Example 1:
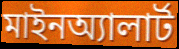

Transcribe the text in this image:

মাইনঅ্যালার্ট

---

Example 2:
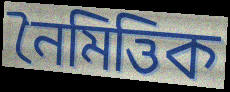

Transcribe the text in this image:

নৈমিত্তিক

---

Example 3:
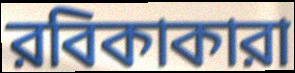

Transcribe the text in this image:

রবিকাকারা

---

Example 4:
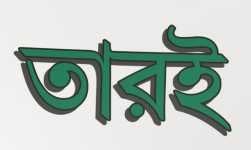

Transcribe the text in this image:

তারই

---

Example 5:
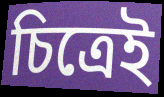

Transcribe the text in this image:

চিত্রেই